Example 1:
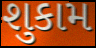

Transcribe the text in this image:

શુકામ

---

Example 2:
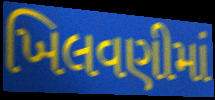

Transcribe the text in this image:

ખિલવણીમાં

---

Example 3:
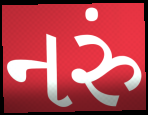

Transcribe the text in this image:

નરું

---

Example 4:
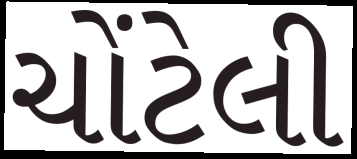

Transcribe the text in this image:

ચોંટેલી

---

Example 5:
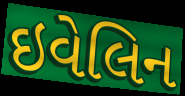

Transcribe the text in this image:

ઇવેલિન